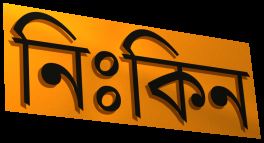
নিঃকিন